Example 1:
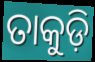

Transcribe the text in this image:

ତାକୁଡ଼ି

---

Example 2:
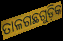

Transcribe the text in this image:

ତାଳଗଛଗୁଡ଼ିକ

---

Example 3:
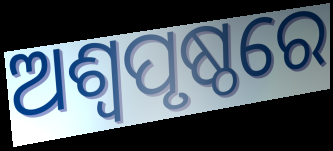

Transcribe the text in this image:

ଅଶ୍ୱପୃଷ୍ଠରେ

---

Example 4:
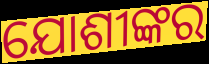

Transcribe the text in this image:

ଯୋଶୀଙ୍କର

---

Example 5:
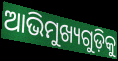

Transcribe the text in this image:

ଆଭିମୁଖ୍ୟଗୁଡ଼ିକୁ